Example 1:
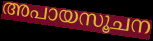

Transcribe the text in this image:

അപായസൂചന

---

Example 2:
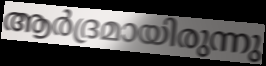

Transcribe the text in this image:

ആർദ്രമായിരുന്നു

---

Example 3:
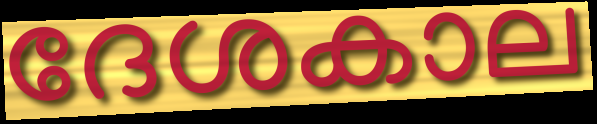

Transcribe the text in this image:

ദേശകാല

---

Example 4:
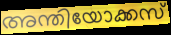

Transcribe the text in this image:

അന്തിയോക്കസ്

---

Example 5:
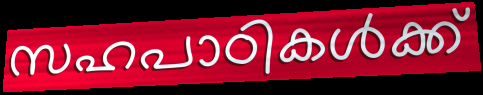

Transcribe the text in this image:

സഹപാഠികൾക്ക്